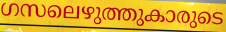
ഗസലെഴുത്തുകാരുടെ